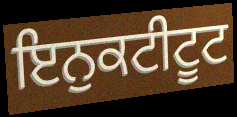
ਇਨੁਕਟੀਟੂਟ